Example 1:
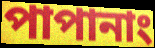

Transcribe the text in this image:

পাপানাং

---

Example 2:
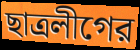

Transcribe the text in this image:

ছাত্রলীগের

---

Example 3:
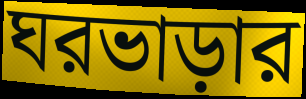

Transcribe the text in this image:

ঘরভাড়ার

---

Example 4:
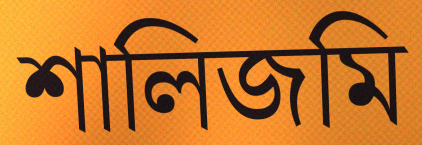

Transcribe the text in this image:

শালিজমি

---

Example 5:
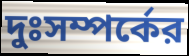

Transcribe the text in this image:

দুঃসম্পর্কের